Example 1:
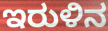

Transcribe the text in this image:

ಇರುಳಿನ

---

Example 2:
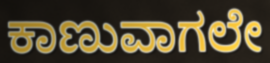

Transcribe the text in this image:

ಕಾಣುವಾಗಲೇ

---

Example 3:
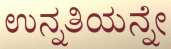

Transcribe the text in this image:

ಉನ್ನತಿಯನ್ನೇ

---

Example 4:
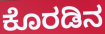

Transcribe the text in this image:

ಕೊರಡಿನ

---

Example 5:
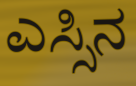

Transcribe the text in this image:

ಎಸ್ಸಿನ